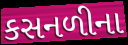
કસનળીના